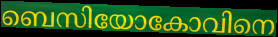
ബെസിയോകോവിനെ